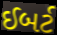
ઈબર્ટ